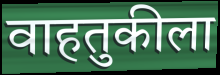
वाहतुकीला